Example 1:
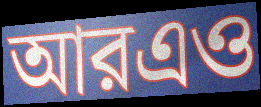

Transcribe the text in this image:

আরএও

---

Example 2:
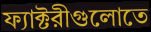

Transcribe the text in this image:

ফ্যাক্টরীগুলোতে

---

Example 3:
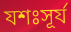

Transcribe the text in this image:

যশঃসূর্য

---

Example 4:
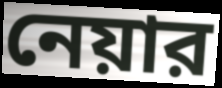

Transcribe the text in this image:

নেয়ার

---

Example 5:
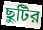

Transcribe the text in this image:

ছুটির